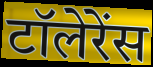
टॉलेरेंस